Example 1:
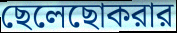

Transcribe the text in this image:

ছেলেছোকরার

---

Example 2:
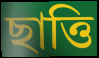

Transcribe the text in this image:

ছাত্তি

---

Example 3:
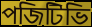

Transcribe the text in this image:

পজিটিভি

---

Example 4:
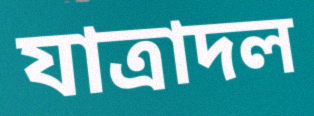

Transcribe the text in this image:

যাত্রাদল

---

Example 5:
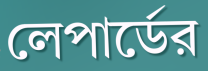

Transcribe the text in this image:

লেপার্ডের